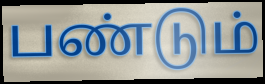
பண்டும்